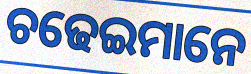
ଚଢେଇମାନେ